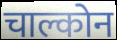
चाल्कोन